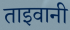
ताइवानी